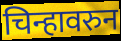
चिन्हावरुन